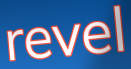
revel